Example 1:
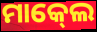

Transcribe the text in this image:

ମାକ୍‍ଲେ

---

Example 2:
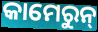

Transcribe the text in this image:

କାମେରୁନ୍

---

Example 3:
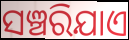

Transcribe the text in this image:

ସଞ୍ଚରିଯାଏ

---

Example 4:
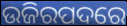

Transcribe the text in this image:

ଉଜିରପଦରେ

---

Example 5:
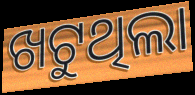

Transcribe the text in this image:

ଖଟୁଥିଲା